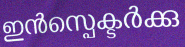
ഇൻസ്പെക്ടർക്കു